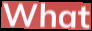
What